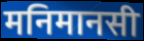
मनिमानसी